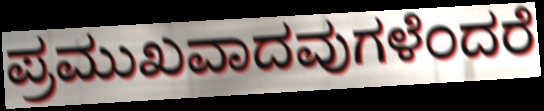
ಪ್ರಮುಖವಾದವುಗಳೆಂದರೆ